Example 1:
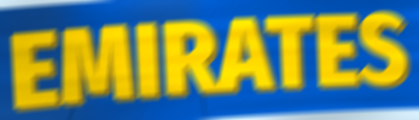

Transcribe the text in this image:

EMIRATES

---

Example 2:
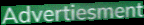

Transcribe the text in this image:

Advertiesment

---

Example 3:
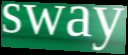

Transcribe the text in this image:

sway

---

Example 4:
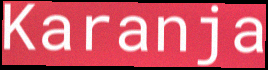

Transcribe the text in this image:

Karanja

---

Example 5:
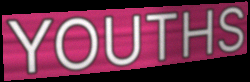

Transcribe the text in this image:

YOUTHS